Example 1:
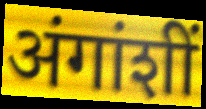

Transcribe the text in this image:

अंगांशीं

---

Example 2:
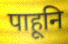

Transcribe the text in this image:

पाहूनि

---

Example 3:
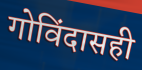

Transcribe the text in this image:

गोविंदासही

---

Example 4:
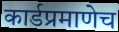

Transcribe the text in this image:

कार्डप्रमाणेच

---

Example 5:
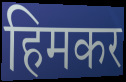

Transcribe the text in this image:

हिमकर